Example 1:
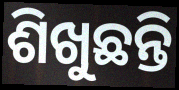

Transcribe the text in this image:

ଶିଖୁଛନ୍ତି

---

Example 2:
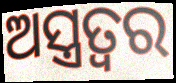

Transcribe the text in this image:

ଅସ୍ତ୍ରତ୍ୱର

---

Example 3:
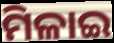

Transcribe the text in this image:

ମିଳାଇ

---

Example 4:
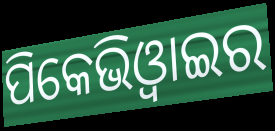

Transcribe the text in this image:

ପିକେଭିଓ୍ବାଇର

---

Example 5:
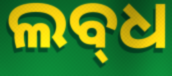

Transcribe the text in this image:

ଲବ୍‌ଧ